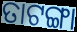
ତାଟଙ୍ଗା